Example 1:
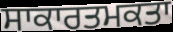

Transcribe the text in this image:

ਸਾਕਾਰਤਮਕਤਾ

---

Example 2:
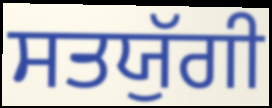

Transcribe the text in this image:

ਸਤਯੁੱਗੀ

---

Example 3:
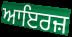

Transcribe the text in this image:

ਆਇਰਜ਼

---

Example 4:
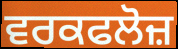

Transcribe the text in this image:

ਵਰਕਫਲੋਜ਼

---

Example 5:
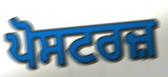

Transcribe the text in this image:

ਪੋਸਟਰਜ਼